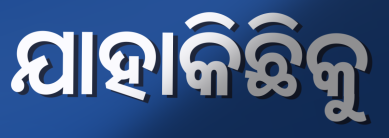
ଯାହାକିଛିକୁ